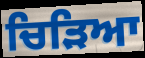
ਚਿੜਿਆ